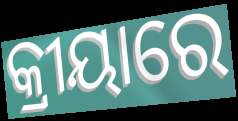
କ୍ରୀୟାରେ